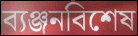
ব্যঞ্জনবিশেষ